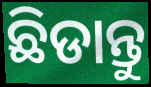
ଛିଡାନ୍ତୁ